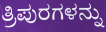
ತ್ರಿಪುರಗಳನ್ನು